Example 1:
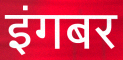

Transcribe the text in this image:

इंगबर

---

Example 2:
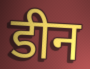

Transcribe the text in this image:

डीन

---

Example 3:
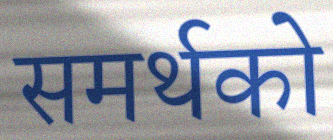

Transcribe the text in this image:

समर्थको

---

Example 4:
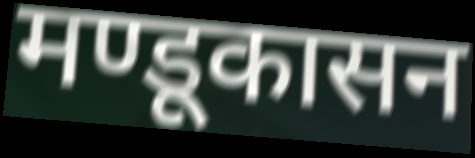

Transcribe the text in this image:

मण्डूकासन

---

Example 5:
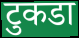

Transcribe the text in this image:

टुकडा